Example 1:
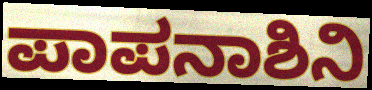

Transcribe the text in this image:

ಪಾಪನಾಶಿನಿ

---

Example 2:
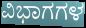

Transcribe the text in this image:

ವಿಭಾಗಗಳ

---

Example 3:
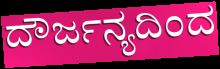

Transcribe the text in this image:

ದೌರ್ಜನ್ಯದಿಂದ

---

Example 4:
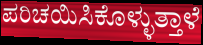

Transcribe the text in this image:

ಪರಿಚಯಿಸಿಕೊಳ್ಳುತ್ತಾಳೆ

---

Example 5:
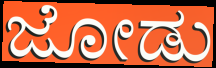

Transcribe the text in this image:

ಜೋಡು